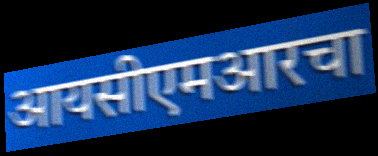
आयसीएमआरचा